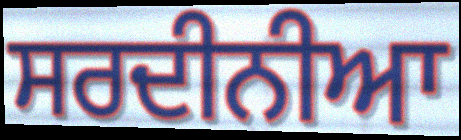
ਸਰਦੀਨੀਆ